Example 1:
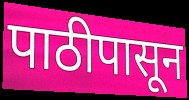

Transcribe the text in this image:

पाठीपासून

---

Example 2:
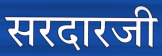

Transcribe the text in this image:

सरदारजी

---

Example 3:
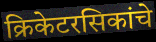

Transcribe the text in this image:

क्रिकेटरसिकांचे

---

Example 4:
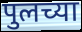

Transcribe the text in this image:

पुलच्या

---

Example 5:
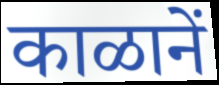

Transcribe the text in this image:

काळानें